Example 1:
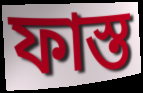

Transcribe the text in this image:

ফাস্ত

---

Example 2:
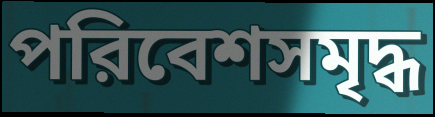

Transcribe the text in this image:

পরিবেশসমৃদ্ধ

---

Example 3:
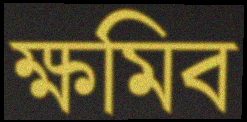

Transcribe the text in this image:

ক্ষমিব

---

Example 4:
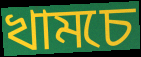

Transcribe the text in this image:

খামচে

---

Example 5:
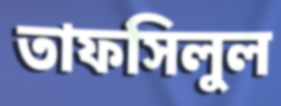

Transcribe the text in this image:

তাফসিলুল